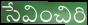
సేవించిరి